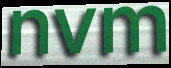
nvm